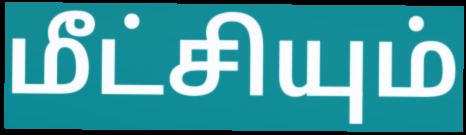
மீட்சியும்